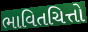
ભાવિતચિત્તો